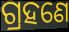
ଗ୍ରହଣେ